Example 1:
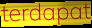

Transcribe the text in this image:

terdapat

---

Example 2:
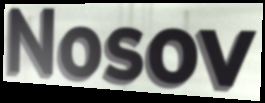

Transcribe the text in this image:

Nosov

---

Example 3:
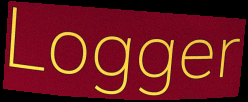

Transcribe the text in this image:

Logger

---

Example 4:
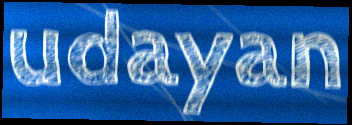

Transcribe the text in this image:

udayan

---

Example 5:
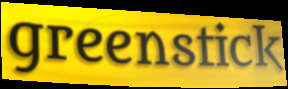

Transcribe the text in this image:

greenstick